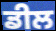
ਡੀਲ